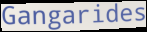
Gangarides